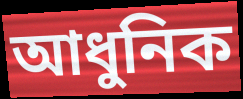
আধুনিক